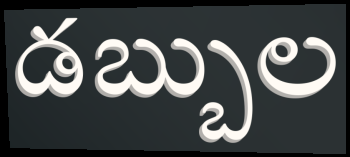
డబ్బుల